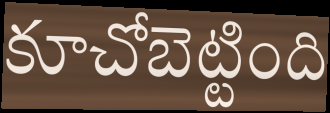
కూచోబెట్టింది